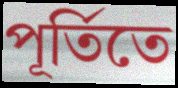
পূর্তিতে